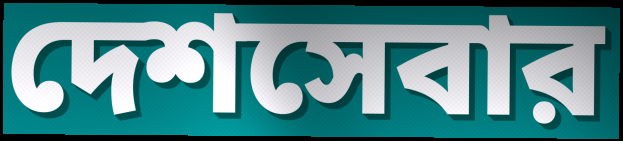
দেশসেবার